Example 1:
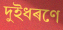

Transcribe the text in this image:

দুইধৰণে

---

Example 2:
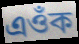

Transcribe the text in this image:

এওঁক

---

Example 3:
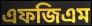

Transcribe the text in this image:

এফজিএম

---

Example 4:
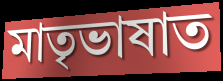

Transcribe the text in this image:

মাতৃভাষাত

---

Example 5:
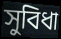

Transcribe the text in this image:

সুবিধা